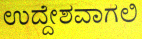
ಉದ್ದೇಶವಾಗಲಿ